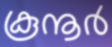
കൂനൂർ